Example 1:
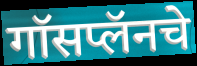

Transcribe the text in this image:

गॉसप्लॅनचे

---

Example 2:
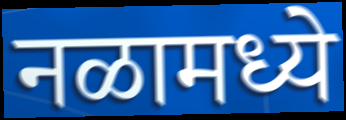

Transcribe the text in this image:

नळामध्ये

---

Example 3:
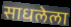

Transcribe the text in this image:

साधलेला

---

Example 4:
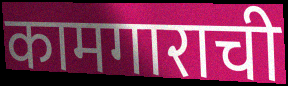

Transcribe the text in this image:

कामगाराची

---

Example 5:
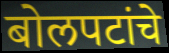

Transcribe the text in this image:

बोलपटांचे